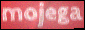
mojega